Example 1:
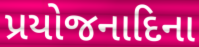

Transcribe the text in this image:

પ્રયોજનાદિના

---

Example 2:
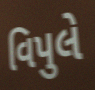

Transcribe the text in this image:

વિપુલે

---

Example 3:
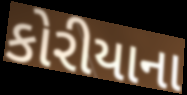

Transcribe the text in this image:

કોરીયાના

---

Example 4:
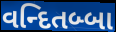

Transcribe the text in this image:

વન્દિતબ્બા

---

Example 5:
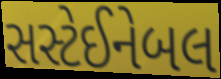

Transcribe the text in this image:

સસ્ટેઈનેબલ